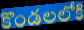
కొండలలోకి